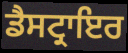
ਡੈਸਟ੍ਰਾਇਰ